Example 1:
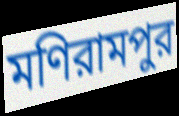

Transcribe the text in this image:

মণিরামপুর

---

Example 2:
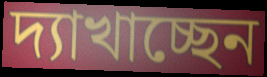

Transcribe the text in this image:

দ্যাখাচ্ছেন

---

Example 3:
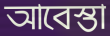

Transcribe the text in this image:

আবেস্তা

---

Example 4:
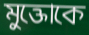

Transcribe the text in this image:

মুক্তোকে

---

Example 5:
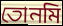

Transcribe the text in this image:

তোনমি